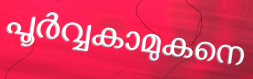
പൂർവ്വകാമുകനെ